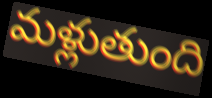
మళ్లుతుంది